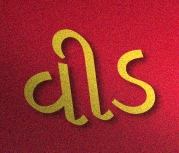
વીડ